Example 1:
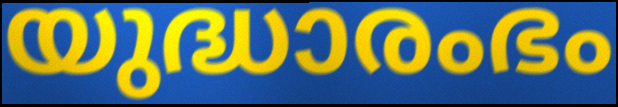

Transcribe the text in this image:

യുദ്ധാരംഭം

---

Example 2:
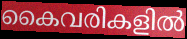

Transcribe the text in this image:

കൈവരികളിൽ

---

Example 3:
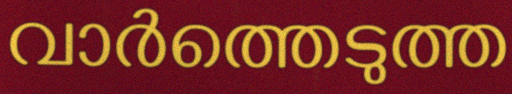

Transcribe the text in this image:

വാർത്തെടുത്ത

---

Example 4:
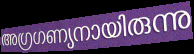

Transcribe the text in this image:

അഗ്രഗണ്യനായിരുന്നു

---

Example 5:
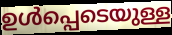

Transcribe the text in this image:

ഉൾപ്പെടെയുള്ള